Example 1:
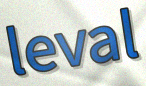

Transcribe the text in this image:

leval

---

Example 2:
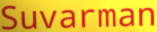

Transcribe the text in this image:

Suvarman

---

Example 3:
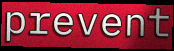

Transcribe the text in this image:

prevent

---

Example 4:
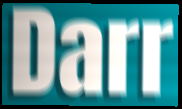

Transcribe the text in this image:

Darr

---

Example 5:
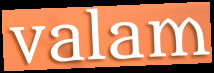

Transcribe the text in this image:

valam